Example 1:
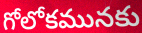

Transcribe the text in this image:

గోలోకమునకు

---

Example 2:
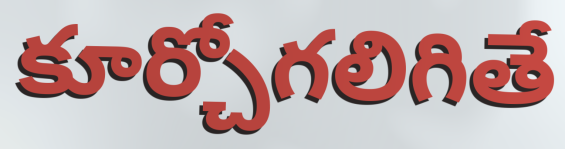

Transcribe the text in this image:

కూర్చోగలిగితే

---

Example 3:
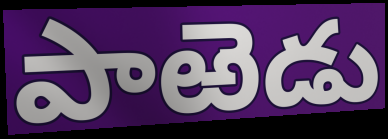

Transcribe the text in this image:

పాఱెడు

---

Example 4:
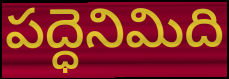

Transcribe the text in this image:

పద్ధెనిమిది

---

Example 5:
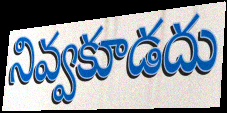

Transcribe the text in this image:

నివ్వకూడదు